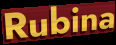
Rubina